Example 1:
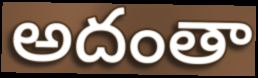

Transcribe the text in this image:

అదంతా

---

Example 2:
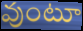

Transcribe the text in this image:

వుంటూ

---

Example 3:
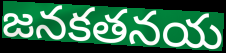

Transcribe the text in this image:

జనకతనయ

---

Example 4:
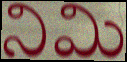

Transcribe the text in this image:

నిమి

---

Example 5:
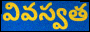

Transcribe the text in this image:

వివస్వత